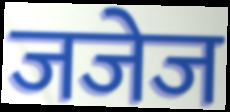
जजेज